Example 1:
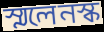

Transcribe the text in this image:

স্মলেনস্ক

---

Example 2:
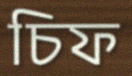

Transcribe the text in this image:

চিফ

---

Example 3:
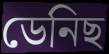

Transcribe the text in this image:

ডেনিছ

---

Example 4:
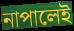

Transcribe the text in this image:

নাপালেই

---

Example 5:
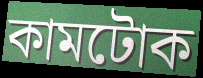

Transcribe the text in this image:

কামটোক